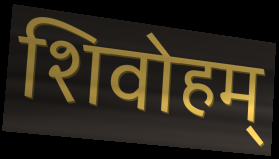
शिवोहम्